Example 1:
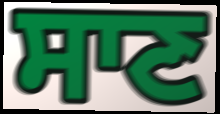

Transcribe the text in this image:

ਸਾਣ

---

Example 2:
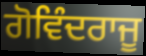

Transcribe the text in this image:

ਗੋਵਿੰਦਰਾਜੂ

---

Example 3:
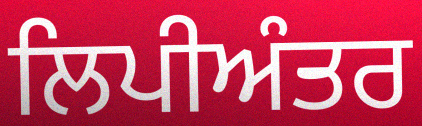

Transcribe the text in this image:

ਲਿਪੀਅੰਤਰ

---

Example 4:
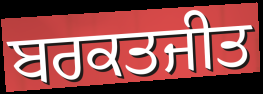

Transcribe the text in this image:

ਬਰਕਤਜੀਤ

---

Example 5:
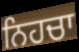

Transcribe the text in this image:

ਨਿਹਚਾ